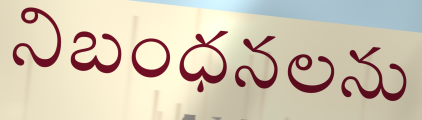
నిబంధనలను